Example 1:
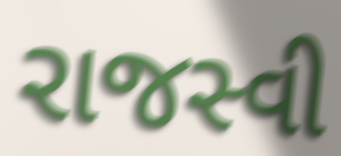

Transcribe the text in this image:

રાજસ્વી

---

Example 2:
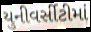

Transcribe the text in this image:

યુનીવર્સીટીમાં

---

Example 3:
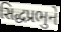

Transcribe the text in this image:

સિદ્ધપ્રભુને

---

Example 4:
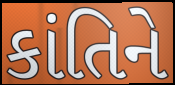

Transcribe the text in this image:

કાંતિને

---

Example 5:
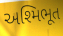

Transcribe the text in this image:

અશ્મિભૂત